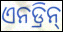
ଏନଡ୍ରିନ୍